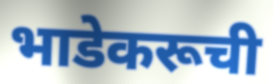
भाडेकरूची